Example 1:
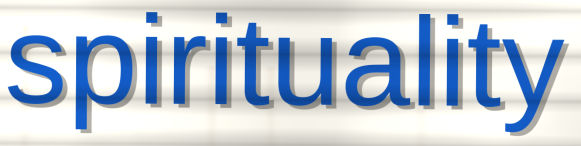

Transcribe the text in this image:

spirituality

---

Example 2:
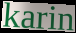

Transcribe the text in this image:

karin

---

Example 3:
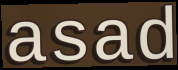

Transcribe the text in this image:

asad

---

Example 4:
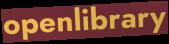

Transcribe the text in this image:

openlibrary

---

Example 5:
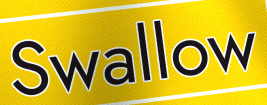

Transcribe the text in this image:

Swallow